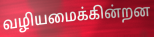
வழியமைக்கின்றன